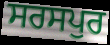
ਸਰਸਪੁਰ